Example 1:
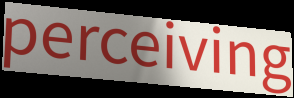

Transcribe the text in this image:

perceiving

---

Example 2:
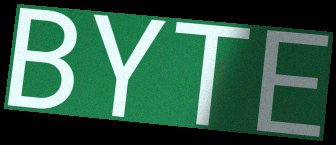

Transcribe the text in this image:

BYTE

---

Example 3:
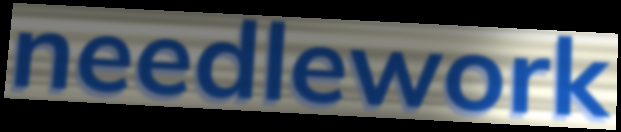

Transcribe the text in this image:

needlework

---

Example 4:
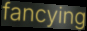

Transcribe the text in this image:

fancying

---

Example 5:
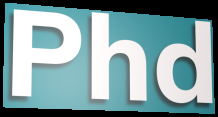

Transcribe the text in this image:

Phd